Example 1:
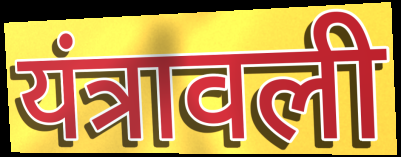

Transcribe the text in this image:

यंत्रावली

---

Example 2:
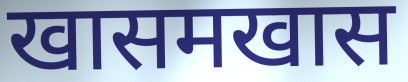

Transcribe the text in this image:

खासमखास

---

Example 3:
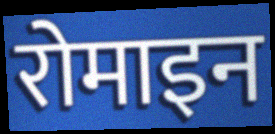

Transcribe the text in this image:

रोमाइन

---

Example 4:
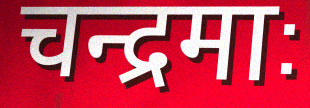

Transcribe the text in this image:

चन्द्रमाः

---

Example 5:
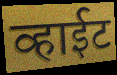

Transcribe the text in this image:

व्हाईट